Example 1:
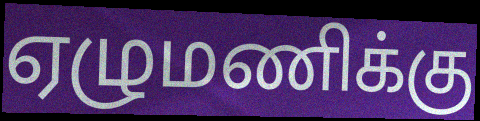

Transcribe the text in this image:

ஏழுமணிக்கு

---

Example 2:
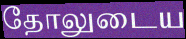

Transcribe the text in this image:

தோலுடைய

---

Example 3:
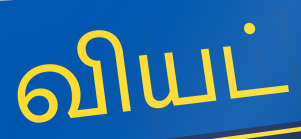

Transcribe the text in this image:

வியட்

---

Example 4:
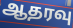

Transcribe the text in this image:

ஆதரவு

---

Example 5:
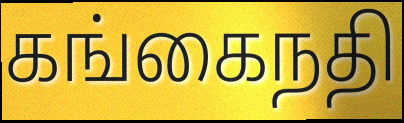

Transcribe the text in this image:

கங்கைநதி